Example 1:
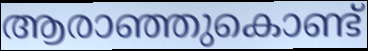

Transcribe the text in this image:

ആരാഞ്ഞുകൊണ്ട്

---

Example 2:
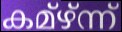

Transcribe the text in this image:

കമ്ഴ്ന്ന്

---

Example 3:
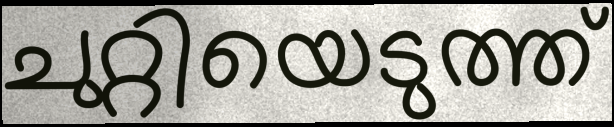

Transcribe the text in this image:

ചുറ്റിയെടുത്ത്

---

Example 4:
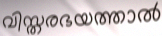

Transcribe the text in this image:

വിസ്തരഭയത്താൽ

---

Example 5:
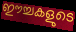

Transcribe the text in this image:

ഈച്ചകളുടെ